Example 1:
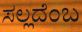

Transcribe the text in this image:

ಸಲ್ಲದೆಂಬ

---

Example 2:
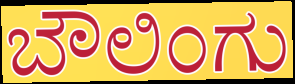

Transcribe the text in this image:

ಬೌಲಿಂಗು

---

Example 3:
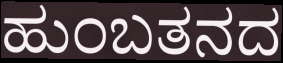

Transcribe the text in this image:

ಹುಂಬತನದ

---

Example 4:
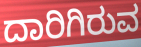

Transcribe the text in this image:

ದಾರಿಗಿರುವ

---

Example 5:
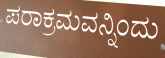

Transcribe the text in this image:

ಪರಾಕ್ರಮವನ್ನಿಂದು